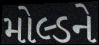
મોલ્ડને